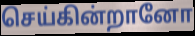
செய்கின்றானோ